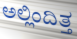
ಅಲ್ಲಿಂದಿತ್ತ